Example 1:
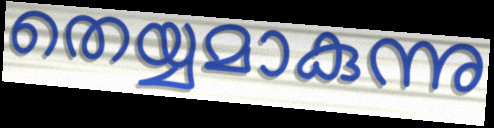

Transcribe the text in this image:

തെയ്യമാകുന്നു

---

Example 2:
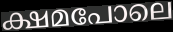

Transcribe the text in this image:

ക്ഷമപോലെ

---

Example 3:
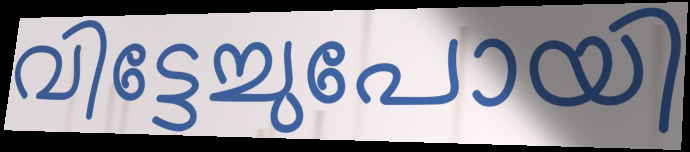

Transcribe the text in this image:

വിട്ടേച്ചുപോയി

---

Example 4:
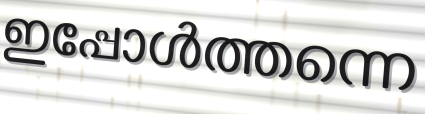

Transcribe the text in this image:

ഇപ്പോൾത്തന്നെ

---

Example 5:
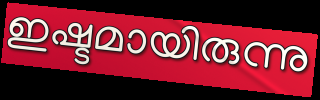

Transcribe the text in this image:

ഇഷ്ടമായിരുന്നു